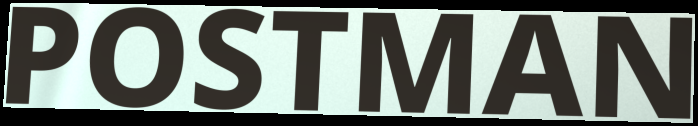
POSTMAN